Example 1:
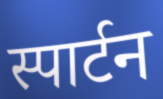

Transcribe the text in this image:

स्पार्टन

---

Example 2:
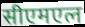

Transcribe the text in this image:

सीएमएल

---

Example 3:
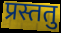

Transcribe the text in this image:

प्रस्ततु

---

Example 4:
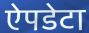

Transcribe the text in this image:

ऐपडेटा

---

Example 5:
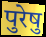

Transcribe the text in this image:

पुरेषु